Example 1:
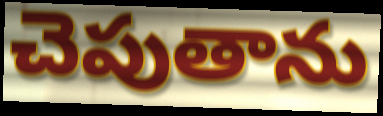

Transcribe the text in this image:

చెపుతాను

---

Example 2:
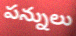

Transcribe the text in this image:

పన్నులు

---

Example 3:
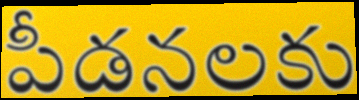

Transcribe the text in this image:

పీడనలకు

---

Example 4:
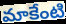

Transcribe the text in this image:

మాకేంటి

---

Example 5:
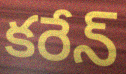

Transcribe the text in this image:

కరేన్